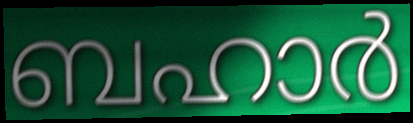
ബഹാർ